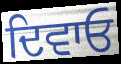
ਦਿਵਾਓ